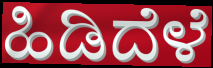
ಹಿಡಿದೆಳೆ